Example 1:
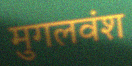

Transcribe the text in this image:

मुगलवंश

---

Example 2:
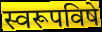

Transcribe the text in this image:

स्वरूपविषे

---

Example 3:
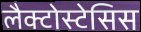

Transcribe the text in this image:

लैक्टोस्टेसिस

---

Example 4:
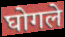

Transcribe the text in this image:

घोगले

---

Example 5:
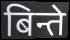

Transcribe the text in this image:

बिन्ते